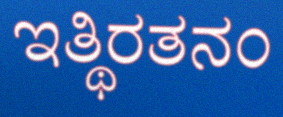
ಇತ್ಥಿರತನಂ